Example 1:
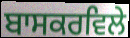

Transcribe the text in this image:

ਬਾਸਕਰਵਿਲੇ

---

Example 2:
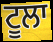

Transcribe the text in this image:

ਟੂਲਾ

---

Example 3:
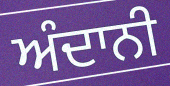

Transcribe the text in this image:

ਅੰਦਾਨੀ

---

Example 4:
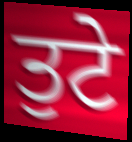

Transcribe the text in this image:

ਤੁਟੇ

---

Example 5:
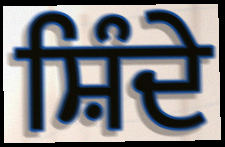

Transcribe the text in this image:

ਸ਼ਿੰਦੇ